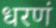
धरणं